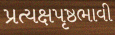
પ્રત્યક્ષપૃષ્ઠભાવી